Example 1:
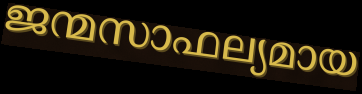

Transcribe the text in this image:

ജന്മസാഫല്യമായ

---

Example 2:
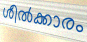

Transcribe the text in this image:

ശീൽക്കാരം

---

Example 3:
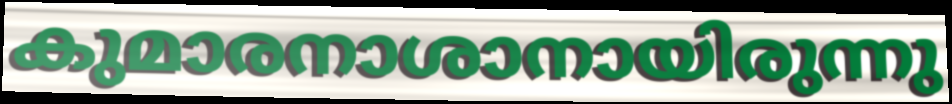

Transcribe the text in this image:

കുമാരനാശാനായിരുന്നു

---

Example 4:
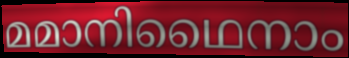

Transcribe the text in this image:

മമാനിഥൈനാം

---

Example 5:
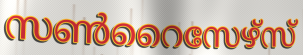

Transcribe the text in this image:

സൺറൈസേഴ്സ്